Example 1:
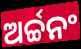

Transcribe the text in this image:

ଅର୍ଚ୍ଚନଂ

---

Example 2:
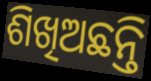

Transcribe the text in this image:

ଶିଖିଅଛନ୍ତି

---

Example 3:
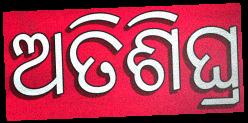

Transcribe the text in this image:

ଅତିଶିଘ୍ର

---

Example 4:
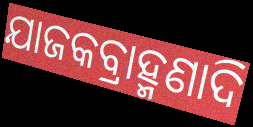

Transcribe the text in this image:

ଯାଜକବ୍ରାହ୍ମଣାଦି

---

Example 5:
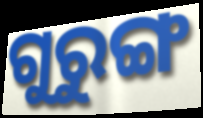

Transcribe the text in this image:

ଗୁରୁଙ୍ଗ